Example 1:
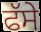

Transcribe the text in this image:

ਫੱਸੇ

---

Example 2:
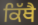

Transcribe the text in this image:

ਕਿੱਥੈ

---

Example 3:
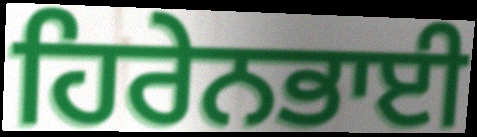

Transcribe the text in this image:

ਹਿਰੇਨਭਾਈ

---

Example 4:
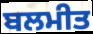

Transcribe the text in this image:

ਬਲਮੀਤ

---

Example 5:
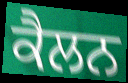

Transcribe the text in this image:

ਕੈਲਨ